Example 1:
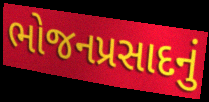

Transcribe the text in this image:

ભોજનપ્રસાદનું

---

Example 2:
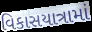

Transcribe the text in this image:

વિકાસયાત્રામાં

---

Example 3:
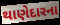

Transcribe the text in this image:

થાણેદારના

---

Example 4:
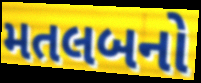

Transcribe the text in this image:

મતલબનો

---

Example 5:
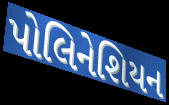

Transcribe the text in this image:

પોલિનેશિયન